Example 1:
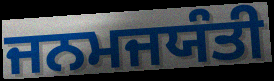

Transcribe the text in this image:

ਜਨਮਜਯੰਤੀ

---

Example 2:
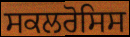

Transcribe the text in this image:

ਸਕਲਰੋਸਿਸ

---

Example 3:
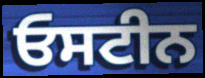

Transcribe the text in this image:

ਓਸਟੀਨ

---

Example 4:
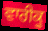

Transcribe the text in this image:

ਵਾਰੀਕੂ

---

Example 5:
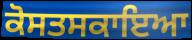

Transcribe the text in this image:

ਕੋਸਤਸਕਾਇਆ